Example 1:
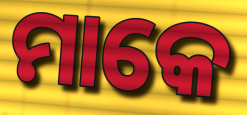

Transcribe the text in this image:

ମାକେ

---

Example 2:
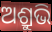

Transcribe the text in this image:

ଅଶ୍ରୁଭି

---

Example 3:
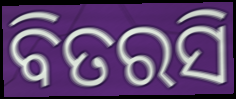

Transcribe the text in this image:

ବିତରସି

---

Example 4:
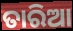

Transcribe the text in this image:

ତାରିଆ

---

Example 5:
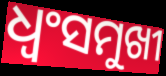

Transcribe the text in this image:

ଧ୍ୱଂସମୁଖୀ